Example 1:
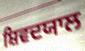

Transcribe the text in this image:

ਸ਼ਿਵਦਯਾਲ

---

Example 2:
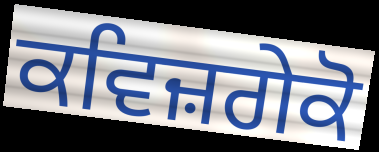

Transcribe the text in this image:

ਕਵਿਜ਼ਗੇਕੋ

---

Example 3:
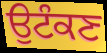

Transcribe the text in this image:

ਉਟੰਕਣ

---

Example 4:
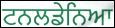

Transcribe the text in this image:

ਟਨਲਡੇਨਿਆ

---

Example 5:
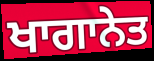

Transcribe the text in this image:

ਖਾਗਾਨੇਤ